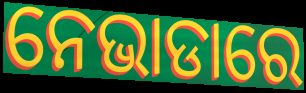
ନେଭାଡାରେ